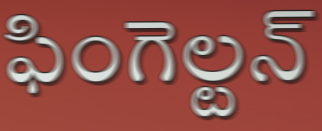
ఫింగెల్టన్